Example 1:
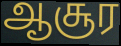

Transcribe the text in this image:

ஆசூர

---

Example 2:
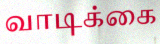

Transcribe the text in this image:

வாடிக்கை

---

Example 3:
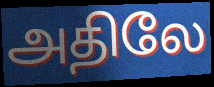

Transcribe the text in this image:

அதிலே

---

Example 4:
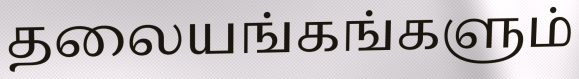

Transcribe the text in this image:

தலையங்கங்களும்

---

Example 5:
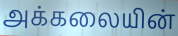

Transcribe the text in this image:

அக்கலையின்